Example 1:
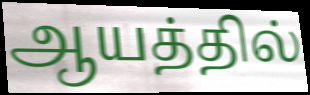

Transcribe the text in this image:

ஆயத்தில்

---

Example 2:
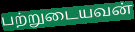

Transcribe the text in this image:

பற்றுடையவன்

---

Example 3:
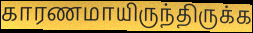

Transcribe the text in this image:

காரணமாயிருந்திருக்க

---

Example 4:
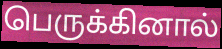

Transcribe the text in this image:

பெருக்கினால்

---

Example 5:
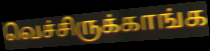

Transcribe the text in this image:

வெச்சிருக்காங்க